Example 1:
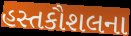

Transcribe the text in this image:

હસ્તકૌશલના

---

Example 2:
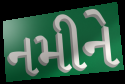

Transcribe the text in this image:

નમીને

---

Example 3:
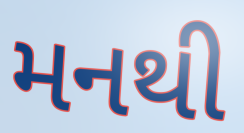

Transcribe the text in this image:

મનથી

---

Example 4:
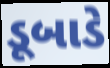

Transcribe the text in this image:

ડૂબાડે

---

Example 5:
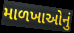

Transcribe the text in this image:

માળખાઓનું